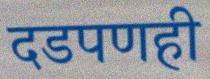
दडपणही